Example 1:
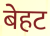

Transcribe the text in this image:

बेहट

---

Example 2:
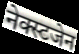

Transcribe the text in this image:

नेक्स्टजेन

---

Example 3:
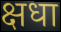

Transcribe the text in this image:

क्षधा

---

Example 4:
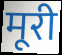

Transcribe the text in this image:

मूरी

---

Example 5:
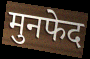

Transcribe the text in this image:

मुनफेद